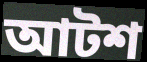
আটশ